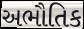
અભૌતિક